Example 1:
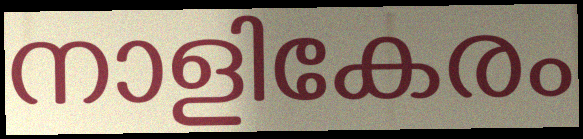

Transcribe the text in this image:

നാളികേരം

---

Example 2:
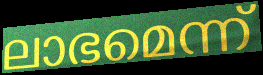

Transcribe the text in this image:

ലാഭമെന്ന്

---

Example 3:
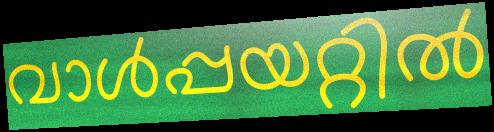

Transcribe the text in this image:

വാൾപ്പയറ്റിൽ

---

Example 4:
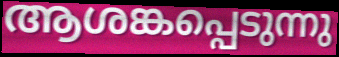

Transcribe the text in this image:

ആശങ്കപ്പെടുന്നു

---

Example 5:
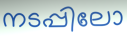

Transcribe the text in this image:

നടപ്പിലോ